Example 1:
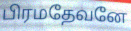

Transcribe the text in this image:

பிரமதேவனே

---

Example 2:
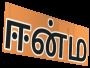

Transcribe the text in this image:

ஈன்ம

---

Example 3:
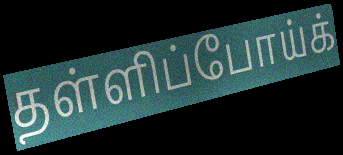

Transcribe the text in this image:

தள்ளிப்போய்க்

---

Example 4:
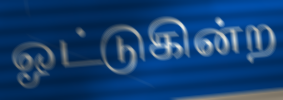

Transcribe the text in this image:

ஓட்டுகின்ற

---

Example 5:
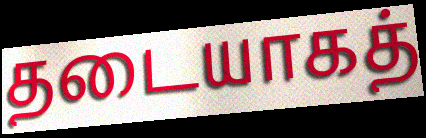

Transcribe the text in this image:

தடையாகத்